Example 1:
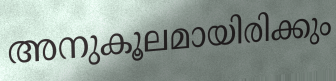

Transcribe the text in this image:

അനുകൂലമായിരിക്കും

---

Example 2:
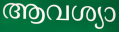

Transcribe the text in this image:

ആവശ്യാ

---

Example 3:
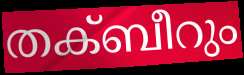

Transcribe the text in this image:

തക്ബീറും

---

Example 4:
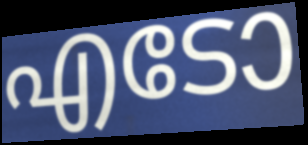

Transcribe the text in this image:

എടോ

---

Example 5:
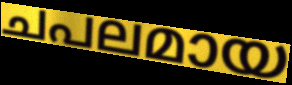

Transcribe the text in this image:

ചപലമായ